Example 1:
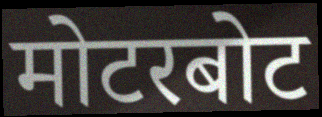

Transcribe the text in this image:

मोटरबोट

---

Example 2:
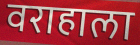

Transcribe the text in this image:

वराहाला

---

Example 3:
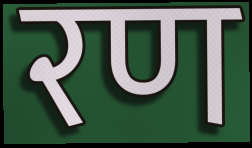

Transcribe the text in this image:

रण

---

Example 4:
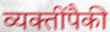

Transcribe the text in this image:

व्यक्‍तींपैकी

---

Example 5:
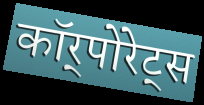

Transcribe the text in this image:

कॉर्पोरेट्‌स